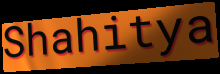
Shahitya